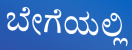
ಬೇಗೆಯಲ್ಲಿ